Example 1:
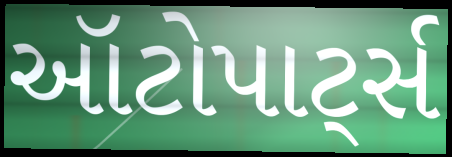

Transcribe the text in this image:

ઑટોપાર્ટ્સ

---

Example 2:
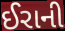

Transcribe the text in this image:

ઈરાની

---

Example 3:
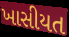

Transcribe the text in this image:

ખાસીયત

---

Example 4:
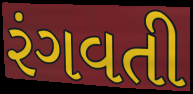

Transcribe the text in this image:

રંગવતી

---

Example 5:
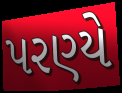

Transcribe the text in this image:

પરણ્યે